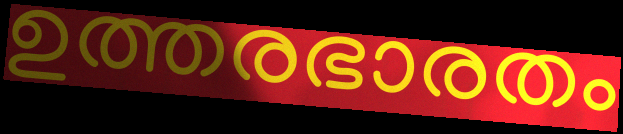
ഉത്തരഭാരതം